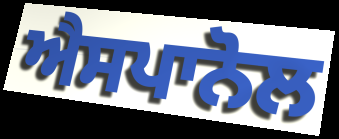
ਐਸਪਾਨੋਲ